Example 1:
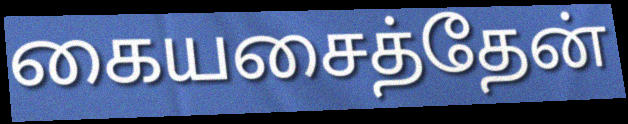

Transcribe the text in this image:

கையசைத்தேன்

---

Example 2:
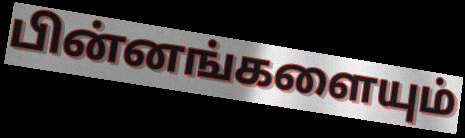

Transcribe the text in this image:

பின்னங்களையும்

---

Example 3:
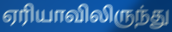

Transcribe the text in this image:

ஏரியாவிலிருந்து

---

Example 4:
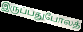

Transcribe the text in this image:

இருப்பதுபோலத்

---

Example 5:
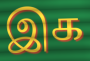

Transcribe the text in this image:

இக